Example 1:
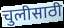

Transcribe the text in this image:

चुलीसाठी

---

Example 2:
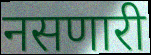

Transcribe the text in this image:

नसणारी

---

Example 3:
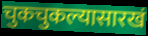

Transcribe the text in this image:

चुकचुकल्यासारखं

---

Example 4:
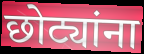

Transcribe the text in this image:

छोट्यांना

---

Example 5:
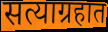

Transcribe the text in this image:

सत्याग्रहात